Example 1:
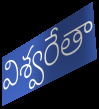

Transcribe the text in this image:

విశ్వరేతా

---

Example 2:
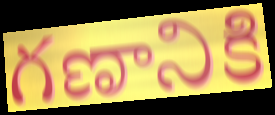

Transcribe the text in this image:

గణానికి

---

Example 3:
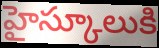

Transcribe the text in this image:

హైస్కూలుకి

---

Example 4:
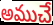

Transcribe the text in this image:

అముచే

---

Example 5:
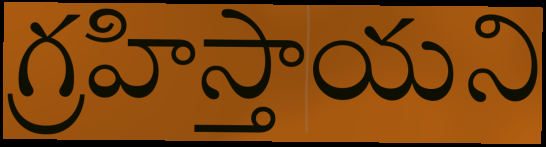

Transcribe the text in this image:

గ్రహిస్తాయని